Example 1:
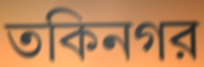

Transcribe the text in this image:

তকিনগর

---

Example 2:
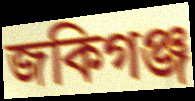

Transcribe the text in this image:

জকিগঞ্জ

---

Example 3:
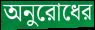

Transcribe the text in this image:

অনুরোধের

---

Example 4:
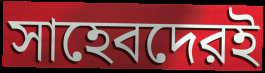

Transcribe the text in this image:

সাহেবদেরই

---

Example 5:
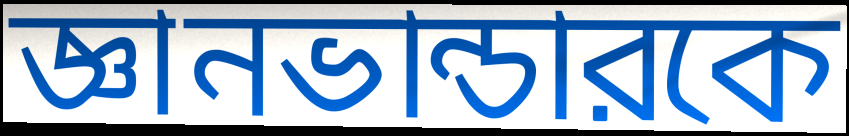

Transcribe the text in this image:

জ্ঞানভান্ডারকে